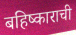
बहिष्काराची